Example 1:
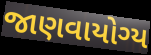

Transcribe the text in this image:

જાણવાયોગ્ય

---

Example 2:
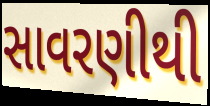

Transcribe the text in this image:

સાવરણીથી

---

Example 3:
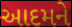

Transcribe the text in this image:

આદમને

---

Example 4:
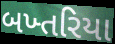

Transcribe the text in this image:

બખ્તરિયા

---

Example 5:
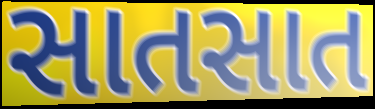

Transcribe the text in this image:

સાતસાત